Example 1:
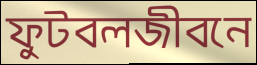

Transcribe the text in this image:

ফুটবলজীবনে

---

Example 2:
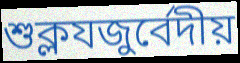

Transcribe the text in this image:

শুক্লযজুর্বেদীয়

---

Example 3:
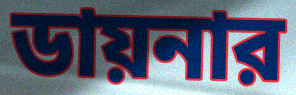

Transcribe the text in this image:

ডায়নার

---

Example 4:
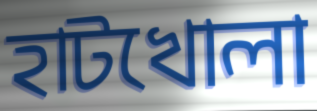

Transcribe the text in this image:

হাটখোলা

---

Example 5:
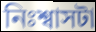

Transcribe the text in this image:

নিঃশ্বাসটা